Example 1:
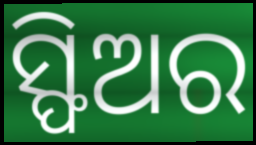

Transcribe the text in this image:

ସ୍ଫିଅର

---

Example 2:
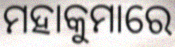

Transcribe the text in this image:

ମହାକୁମାରେ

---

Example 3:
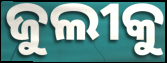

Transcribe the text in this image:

ଜୁଲୀକୁ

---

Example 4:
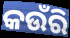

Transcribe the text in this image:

କଉଁରି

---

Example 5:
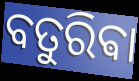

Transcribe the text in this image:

ବତୁରିଵା